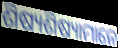
ଶିଷ୍ୟଶିଷ୍ୟାମାନେ